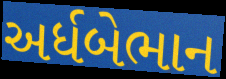
અર્ધબેભાન